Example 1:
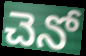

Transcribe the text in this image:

చెనో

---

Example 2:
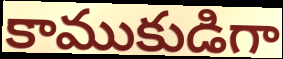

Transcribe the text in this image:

కాముకుడిగా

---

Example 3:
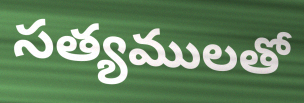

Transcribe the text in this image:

సత్యములతో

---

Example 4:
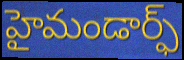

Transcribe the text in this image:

హైమండార్ఫ్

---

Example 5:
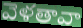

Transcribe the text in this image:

వెళతావా